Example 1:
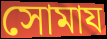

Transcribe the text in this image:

সোমায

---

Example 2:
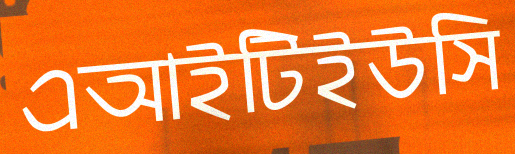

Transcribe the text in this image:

এআইটিইউসি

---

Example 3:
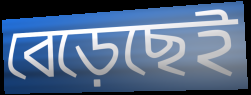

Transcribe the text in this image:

বেড়েছেই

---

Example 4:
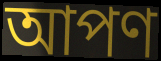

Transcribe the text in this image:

আপণ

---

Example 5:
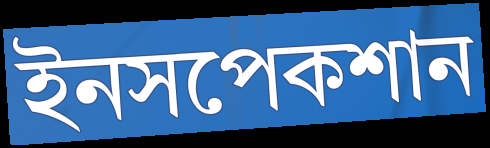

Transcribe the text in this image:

ইনসপেকশান